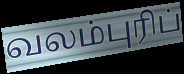
வலம்புரிப்